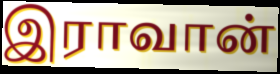
இராவான்